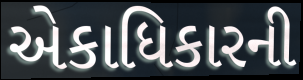
એકાધિકારની